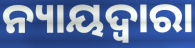
ନ୍ୟାୟଦ୍ୱାରା